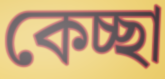
কেচ্ছা